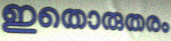
ഇതൊരുതരം